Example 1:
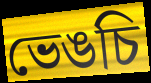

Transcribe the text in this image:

ভেঙচি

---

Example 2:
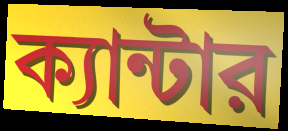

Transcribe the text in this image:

ক্যান্টার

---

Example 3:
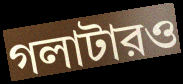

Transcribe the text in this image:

গলাটারও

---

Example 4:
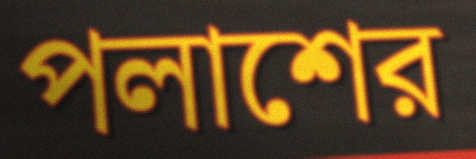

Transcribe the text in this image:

পলাশের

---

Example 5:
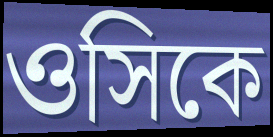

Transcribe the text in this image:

ওসিকে